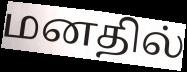
மனதில்